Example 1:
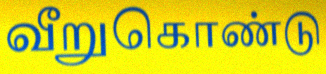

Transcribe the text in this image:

வீறுகொண்டு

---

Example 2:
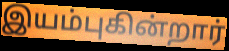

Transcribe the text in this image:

இயம்புகின்றார்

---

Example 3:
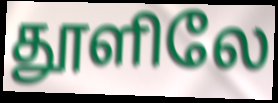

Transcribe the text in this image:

தூளிலே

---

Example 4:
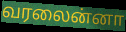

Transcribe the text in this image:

வரலைன்னா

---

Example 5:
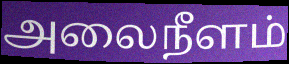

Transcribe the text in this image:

அலைநீளம்